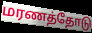
மரணத்தோடு